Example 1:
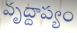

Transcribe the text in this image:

వృద్దాప్యం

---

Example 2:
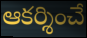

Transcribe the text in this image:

ఆకర్శించే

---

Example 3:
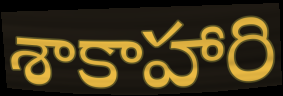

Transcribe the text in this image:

శాకాహారి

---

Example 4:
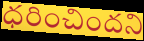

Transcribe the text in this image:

ధరించిందని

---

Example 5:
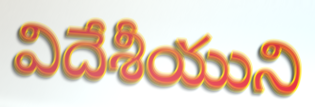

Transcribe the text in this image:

విదేశీయుని